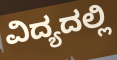
ವಿದ್ಯದಲ್ಲಿ